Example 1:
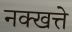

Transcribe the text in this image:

नक्खत्ते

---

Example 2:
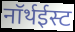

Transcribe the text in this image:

नॉर्थईस्‍ट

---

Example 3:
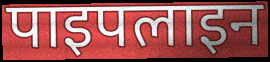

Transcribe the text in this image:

पाइपलाइन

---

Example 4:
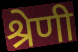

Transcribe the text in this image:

श्रेणी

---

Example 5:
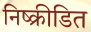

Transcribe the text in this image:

निष्क्रीडित